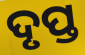
ଦୃପ୍ତ